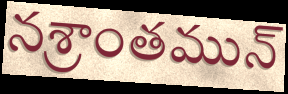
నశ్రాంతమున్